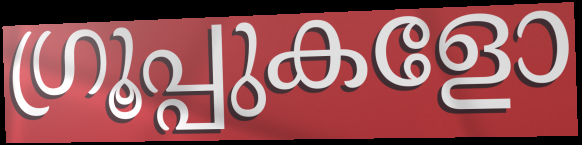
ഗ്രൂപ്പുകളോ